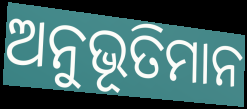
ଅନୁଭୂତିମାନ